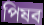
পিষব